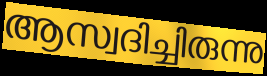
ആസ്വദിച്ചിരുന്നു